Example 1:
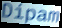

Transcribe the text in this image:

Dipam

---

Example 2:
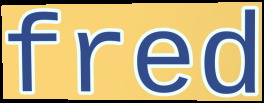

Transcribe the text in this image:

fred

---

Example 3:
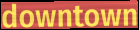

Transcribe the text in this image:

downtown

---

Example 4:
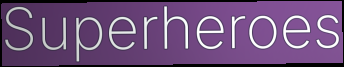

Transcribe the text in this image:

Superheroes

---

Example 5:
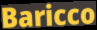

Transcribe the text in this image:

Baricco